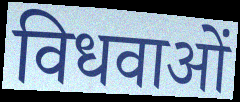
विधवाओं